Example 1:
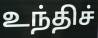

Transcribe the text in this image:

உந்திச்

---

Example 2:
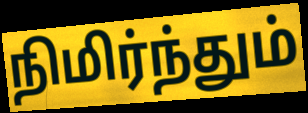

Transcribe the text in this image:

நிமிர்ந்தும்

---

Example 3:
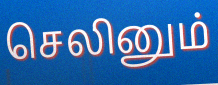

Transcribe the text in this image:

செலினும்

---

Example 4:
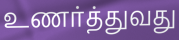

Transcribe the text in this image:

உணர்த்துவது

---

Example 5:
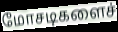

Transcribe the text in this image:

மோசடிகளைச்